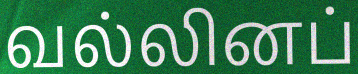
வல்லினப்